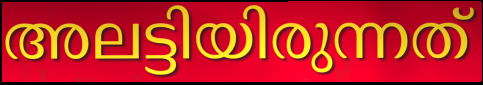
അലട്ടിയിരുന്നത്